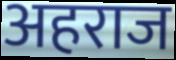
अहराज